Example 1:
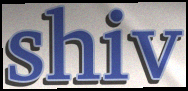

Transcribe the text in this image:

shiv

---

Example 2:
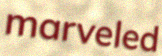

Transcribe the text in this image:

marveled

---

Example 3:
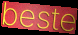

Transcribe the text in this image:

beste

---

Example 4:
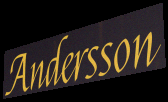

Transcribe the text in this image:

Andersson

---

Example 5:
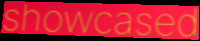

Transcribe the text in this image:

showcased